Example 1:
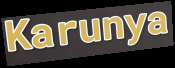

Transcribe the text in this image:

Karunya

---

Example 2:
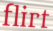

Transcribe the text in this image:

flirt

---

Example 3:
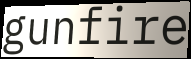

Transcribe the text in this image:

gunfire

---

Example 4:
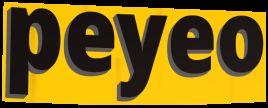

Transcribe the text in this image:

peyeo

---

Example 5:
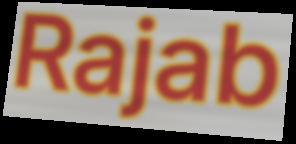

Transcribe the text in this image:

Rajab